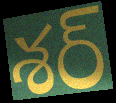
శర్